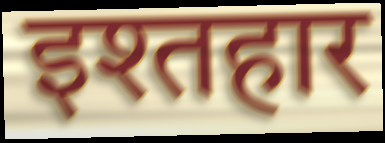
इश्तहार